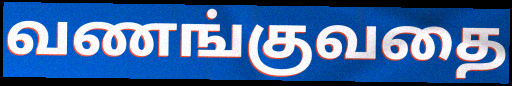
வணங்குவதை